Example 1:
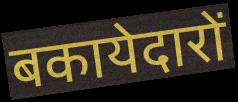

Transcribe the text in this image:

बकायेदारों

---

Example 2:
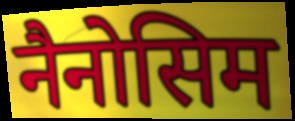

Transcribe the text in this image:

नैनोसिम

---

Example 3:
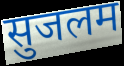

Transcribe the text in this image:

सुजलम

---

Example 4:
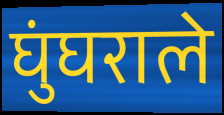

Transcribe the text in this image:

घुंघराले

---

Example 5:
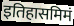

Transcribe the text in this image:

इतिहासमिमं